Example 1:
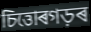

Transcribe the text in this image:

চিত্তোৰগড়ৰ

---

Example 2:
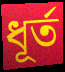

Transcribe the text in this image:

ধূৰ্ত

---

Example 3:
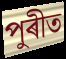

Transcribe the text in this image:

পুৰীত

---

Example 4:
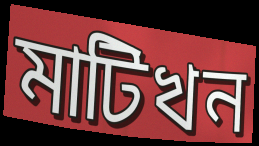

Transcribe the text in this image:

মাটিখন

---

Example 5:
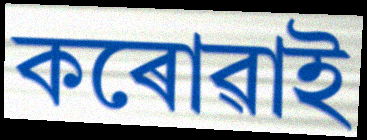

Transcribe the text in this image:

কৰোৱাই